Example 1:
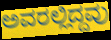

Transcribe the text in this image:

ಅವರಲ್ಲಿದ್ದವು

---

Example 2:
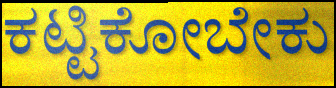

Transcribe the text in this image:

ಕಟ್ಟಿಕೋಬೇಕು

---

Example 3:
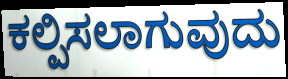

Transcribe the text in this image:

ಕಲ್ಪಿಸಲಾಗುವುದು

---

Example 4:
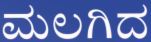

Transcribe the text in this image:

ಮಲಗಿದ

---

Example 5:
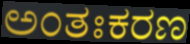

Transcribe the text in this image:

ಅಂತಃಕರಣ